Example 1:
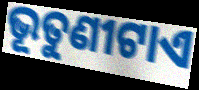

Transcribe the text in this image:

ଭୂତୁଣୀଟାଏ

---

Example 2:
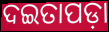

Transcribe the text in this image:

ଦଇତାପଡ଼ା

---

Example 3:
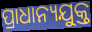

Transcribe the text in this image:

ପ୍ରାଧାନ୍ୟଯୁକ୍ତ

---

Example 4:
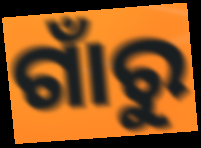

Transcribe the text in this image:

ଗାଁରୁ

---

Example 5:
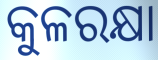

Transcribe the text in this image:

କୁଳରକ୍ଷା